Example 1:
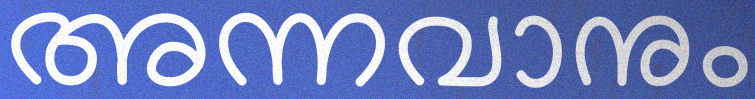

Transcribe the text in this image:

അന്നവാനും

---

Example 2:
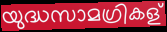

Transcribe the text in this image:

യുദ്ധസാമഗ്രികള്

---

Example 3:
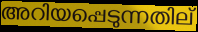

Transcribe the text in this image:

അറിയപ്പെടുന്നതില്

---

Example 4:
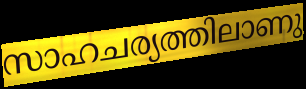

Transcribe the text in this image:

സാഹചര്യത്തിലാണു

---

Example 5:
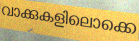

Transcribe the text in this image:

വാക്കുകളിലൊക്കെ